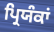
ਪ੍ਰਿਯੰਕਾਂ